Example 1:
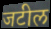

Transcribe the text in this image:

जटील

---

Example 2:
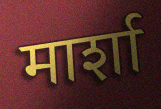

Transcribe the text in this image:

मार्शा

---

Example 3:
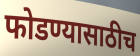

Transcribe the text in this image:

फोडण्यासाठीच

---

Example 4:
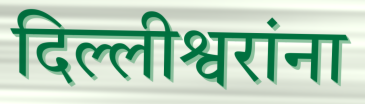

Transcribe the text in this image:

दिल्लीश्वरांना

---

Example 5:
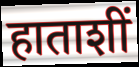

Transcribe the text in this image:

हाताशीं